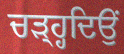
ਚੜ੍ਹ੍ਹਦਿਉਂ